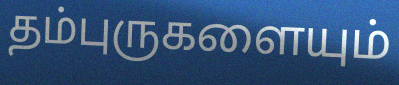
தம்புருகளையும்